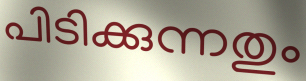
പിടിക്കുന്നതും